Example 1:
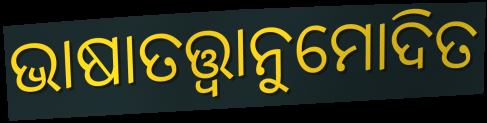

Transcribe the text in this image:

ଭାଷାତତ୍ତ୍ୱାନୁମୋଦିତ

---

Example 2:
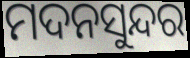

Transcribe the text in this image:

ମଦନସୁନ୍ଦର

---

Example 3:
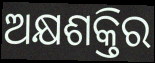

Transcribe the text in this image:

ଅକ୍ଷଶକ୍ତିର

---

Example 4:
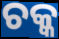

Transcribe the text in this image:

ଚକ୍କ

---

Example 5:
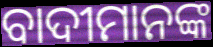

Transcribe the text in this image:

ବାଦୀମାନଙ୍କ